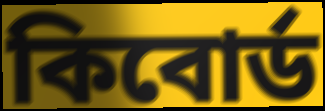
কিবোর্ড